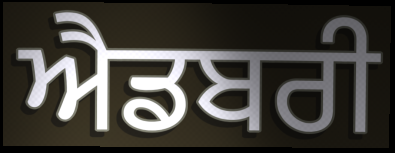
ਐਡਬਰੀ